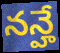
నన్హే